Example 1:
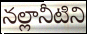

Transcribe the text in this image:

నల్లానీటిని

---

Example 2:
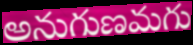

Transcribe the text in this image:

అనుగుణమగు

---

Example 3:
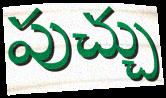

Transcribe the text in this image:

పుచ్చు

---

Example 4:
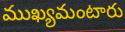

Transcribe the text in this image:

ముఖ్యమంటారు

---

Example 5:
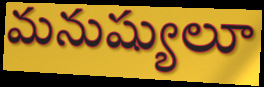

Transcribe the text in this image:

మనుష్యులూ